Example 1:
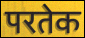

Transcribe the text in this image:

परतेक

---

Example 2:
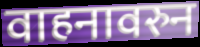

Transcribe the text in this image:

वाहनावरुन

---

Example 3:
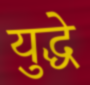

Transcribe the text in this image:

युद्धे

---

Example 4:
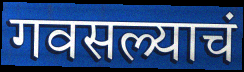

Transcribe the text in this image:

गवसल्याचं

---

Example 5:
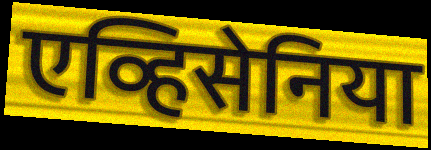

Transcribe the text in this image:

एव्हिसेनिया